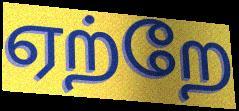
ஏற்றே